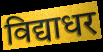
विद्याधर